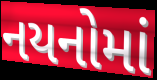
નયનોમાં